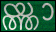
യ്ത്താ